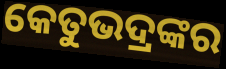
କେତୁଭଦ୍ରଙ୍କର